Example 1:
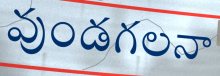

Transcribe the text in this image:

వుండగలనా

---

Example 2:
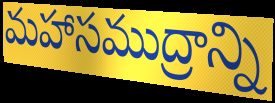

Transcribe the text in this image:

మహాసముద్రాన్ని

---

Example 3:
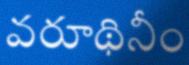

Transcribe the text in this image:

వరూథినీం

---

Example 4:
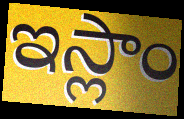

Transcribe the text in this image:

ఇస్లాం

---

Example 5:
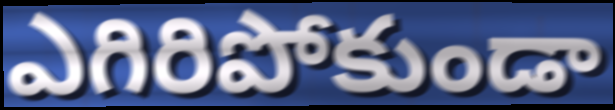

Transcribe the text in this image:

ఎగిరిపోకుండా